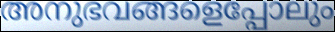
അനുഭവങ്ങളെപ്പോലും